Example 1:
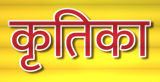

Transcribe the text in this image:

कृतिका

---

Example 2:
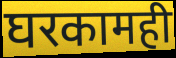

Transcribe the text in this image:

घरकामही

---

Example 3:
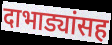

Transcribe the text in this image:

दाभाड्यांसह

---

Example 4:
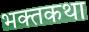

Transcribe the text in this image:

भक्तकथा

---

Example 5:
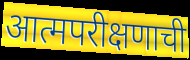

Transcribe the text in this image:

आत्मपरीक्षणाची